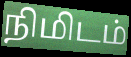
நிமிடம்